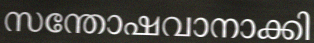
സന്തോഷവാനാക്കി